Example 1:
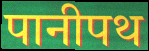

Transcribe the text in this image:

पानीपथ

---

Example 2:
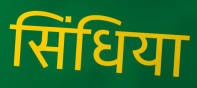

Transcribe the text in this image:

सिंधिया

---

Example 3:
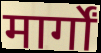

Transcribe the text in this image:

मार्गों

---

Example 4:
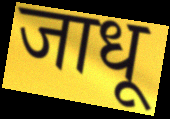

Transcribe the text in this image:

जाधू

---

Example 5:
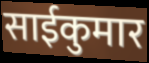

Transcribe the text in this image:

साईकुमार